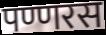
पण्णरस